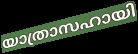
യാത്രാസഹായി